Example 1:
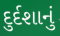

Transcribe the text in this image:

દુર્દશાનું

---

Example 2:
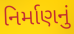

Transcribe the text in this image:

નિર્માણનું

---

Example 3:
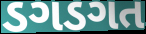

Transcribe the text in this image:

ડગડગત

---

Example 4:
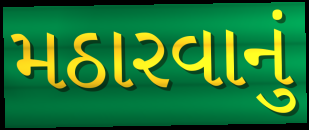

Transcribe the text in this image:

મઠારવાનું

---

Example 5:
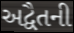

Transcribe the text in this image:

અદ્વૈતની